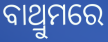
ବାଥ୍ରୁମରେ